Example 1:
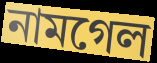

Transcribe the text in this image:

নামগেল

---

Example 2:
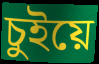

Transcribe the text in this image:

চুইয়ে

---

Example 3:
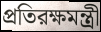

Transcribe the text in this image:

প্রতিরক্ষমন্ত্রী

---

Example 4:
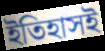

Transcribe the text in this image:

ইতিহাসই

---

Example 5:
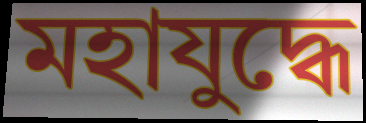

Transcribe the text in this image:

মহাযুদ্ধে